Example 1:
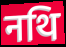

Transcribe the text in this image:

नथि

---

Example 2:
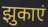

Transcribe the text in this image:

झुकाएं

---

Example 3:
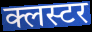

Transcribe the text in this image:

क्‍लस्‍टर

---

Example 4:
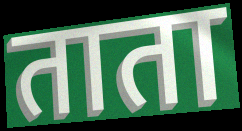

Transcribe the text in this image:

ताता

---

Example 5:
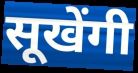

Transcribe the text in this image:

सूखेंगी